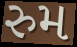
રુમ